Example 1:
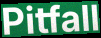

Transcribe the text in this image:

Pitfall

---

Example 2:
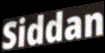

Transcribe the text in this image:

Siddan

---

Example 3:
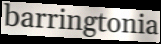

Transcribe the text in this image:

barringtonia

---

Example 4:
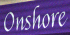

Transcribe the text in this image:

Onshore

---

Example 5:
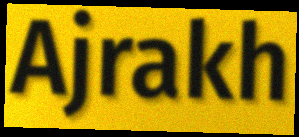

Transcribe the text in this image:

Ajrakh